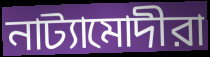
নাট্যামোদীরা